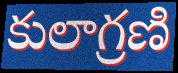
కులాగ్రణి